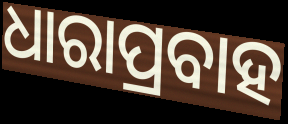
ଧାରାପ୍ରବାହ